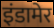
इंडामेर